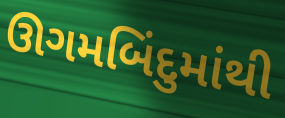
ઊગમબિંદુમાંથી